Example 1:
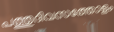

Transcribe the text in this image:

പത്തുദിവസത്തോളം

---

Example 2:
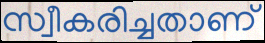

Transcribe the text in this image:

സ്വീകരിച്ചതാണ്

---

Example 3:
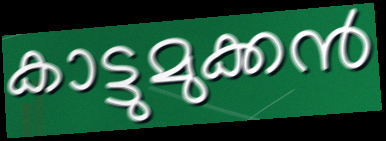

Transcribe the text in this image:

കാട്ടുമുക്കൻ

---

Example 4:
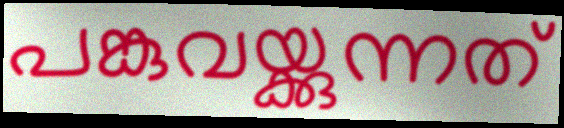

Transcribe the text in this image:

പങ്കുവയ്ക്കുന്നത്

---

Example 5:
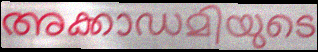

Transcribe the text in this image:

അക്കാഡമിയുടെ